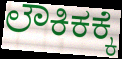
ಲೌಕಿಕಕ್ಕೆ